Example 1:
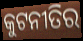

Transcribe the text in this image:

କୁଟନୀତିର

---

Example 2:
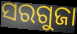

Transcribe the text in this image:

ସରଗୁଜା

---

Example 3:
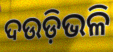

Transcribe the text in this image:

ଦଉଡ଼ିଭଳି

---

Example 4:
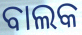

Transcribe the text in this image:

ବାଲକ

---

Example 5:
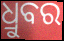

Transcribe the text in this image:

ଧ୍ରୁବର